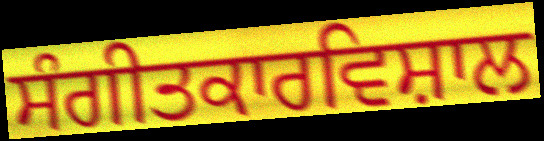
ਸੰਗੀਤਕਾਰਵਿਸ਼ਾਲ